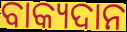
ବାକ୍ୟଦାନ